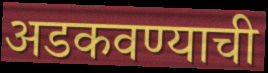
अडकवण्याची